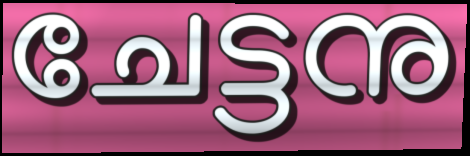
ചേട്ടനു